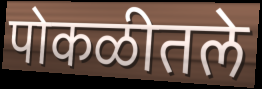
पोकळीतले